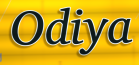
Odiya